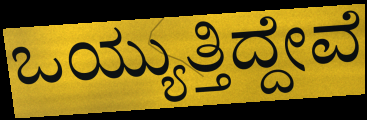
ಒಯ್ಯುತ್ತಿದ್ದೇವೆ